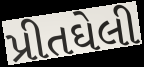
પ્રીતઘેલી